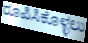
ರೂಪಿಸಿಕೊಳ್ಳಲು